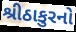
શ્રીઠાકુરનો